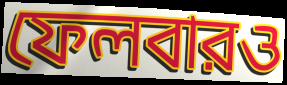
ফেলবারও